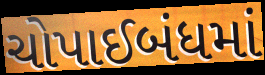
ચોપાઈબંધમાં